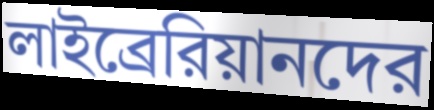
লাইব্রেরিয়ানদের